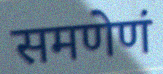
समणेणं